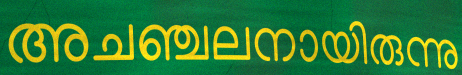
അചഞ്ചലനായിരുന്നു